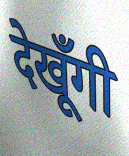
देखूँगी